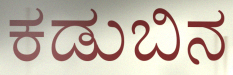
ಕಡುಬಿನ